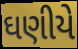
ઘણીયે